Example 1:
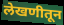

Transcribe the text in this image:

लेखणीतून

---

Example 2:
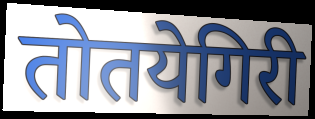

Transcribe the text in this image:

तोतयेगिरी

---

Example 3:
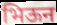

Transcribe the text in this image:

भिऊन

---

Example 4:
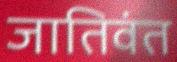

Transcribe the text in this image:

जातिवंत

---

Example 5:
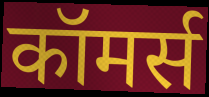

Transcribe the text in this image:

कॉमर्स